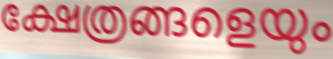
ക്ഷേത്രങ്ങളെയും